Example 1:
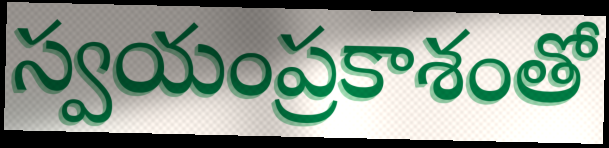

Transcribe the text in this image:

స్వయంప్రకాశంతో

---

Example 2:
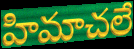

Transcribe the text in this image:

హిమాచలే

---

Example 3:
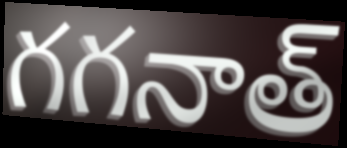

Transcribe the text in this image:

గగనాత్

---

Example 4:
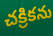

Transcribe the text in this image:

చక్రికను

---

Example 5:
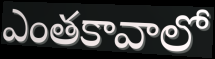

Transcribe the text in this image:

ఎంతకావాలో